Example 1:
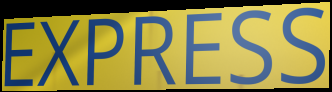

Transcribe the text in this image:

EXPRESS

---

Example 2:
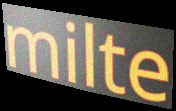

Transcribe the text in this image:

milte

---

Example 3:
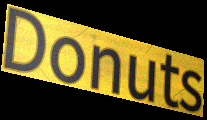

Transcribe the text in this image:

Donuts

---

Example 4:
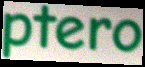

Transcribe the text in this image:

ptero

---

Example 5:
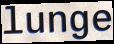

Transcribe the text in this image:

lunge